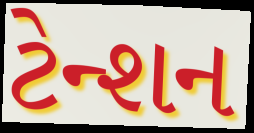
ટેન્શન